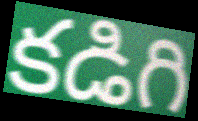
కడిగి